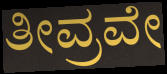
ತೀವ್ರವೇ